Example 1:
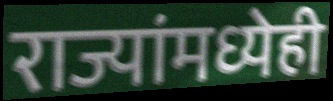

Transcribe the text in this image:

राज्यांमध्येही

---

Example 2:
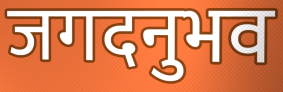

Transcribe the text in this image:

जगदनुभव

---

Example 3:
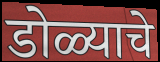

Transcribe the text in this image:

डोळ्याचे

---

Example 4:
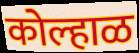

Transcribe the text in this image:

कोल्हाळ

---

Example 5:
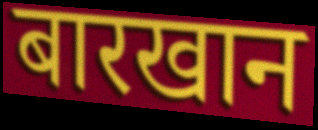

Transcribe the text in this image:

बारखान